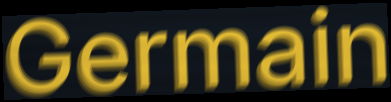
Germain